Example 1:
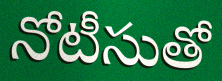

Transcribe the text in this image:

నోటీసుతో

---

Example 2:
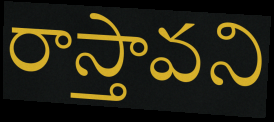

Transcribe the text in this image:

రాస్తావని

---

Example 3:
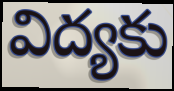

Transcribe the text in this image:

విద్యకు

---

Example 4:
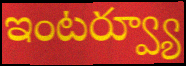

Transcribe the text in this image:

ఇంటర్వ్యూ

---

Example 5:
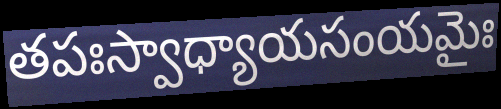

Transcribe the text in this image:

తపఃస్వాధ్యాయసంయమైః